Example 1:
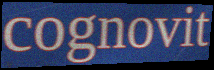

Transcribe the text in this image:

cognovit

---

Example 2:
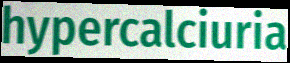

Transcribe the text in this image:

hypercalciuria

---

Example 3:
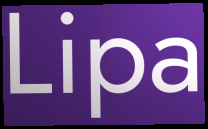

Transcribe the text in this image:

Lipa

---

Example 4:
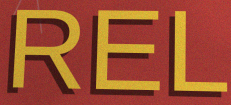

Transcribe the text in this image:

REL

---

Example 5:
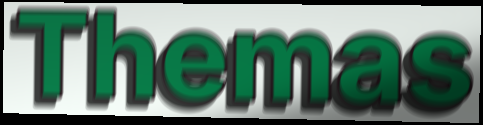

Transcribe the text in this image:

Themas